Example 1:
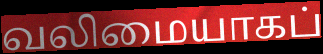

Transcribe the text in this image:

வலிமையாகப்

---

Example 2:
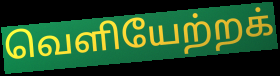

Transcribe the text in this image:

வெளியேற்றக்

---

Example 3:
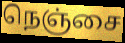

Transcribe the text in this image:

நெஞ்சை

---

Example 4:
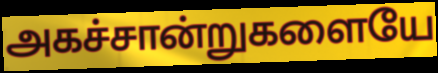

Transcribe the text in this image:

அகச்சான்றுகளையே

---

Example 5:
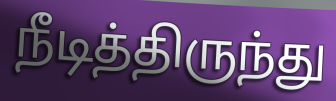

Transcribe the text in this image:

நீடித்திருந்து